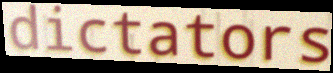
dictators